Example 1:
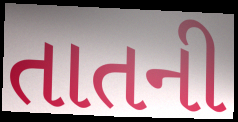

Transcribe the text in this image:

તાતની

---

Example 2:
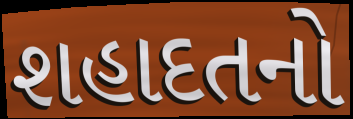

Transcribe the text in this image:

શહાદતનો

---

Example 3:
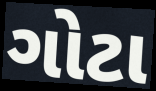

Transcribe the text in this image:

ગોટા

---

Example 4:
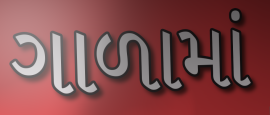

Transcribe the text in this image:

ગાળામાં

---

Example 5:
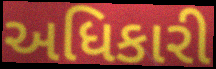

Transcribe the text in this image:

અધિકારી